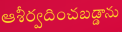
ఆశీర్వదించబడ్డాను